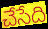
చేసేది